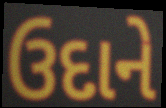
ઉદાને